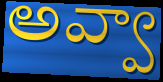
అవ్వా